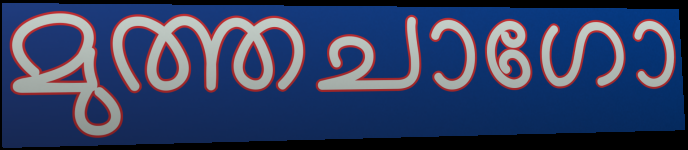
മുത്തചാഗോ